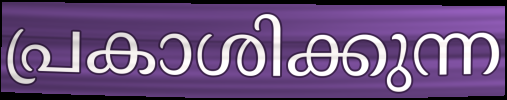
പ്രകാശിക്കുന്ന